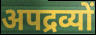
अपद्रव्यों